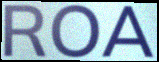
ROA